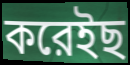
করেইছ